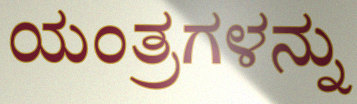
ಯಂತ್ರಗಳನ್ನು